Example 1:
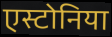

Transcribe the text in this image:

एस्‍टोनिया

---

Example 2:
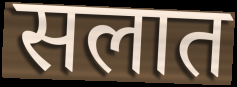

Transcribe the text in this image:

सलात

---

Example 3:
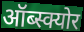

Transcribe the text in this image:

ऑब्स्क्योर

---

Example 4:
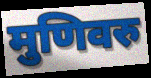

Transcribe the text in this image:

मुणिवरु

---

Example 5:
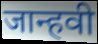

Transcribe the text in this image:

जान्हवी